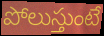
పోలుస్తుంటే